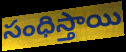
సంధిస్తాయి